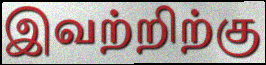
இவற்றிற்கு